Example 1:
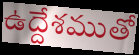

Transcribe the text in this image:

ఉద్దేశముతో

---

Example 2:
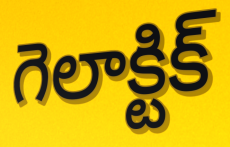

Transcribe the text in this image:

గెలాక్టిక్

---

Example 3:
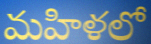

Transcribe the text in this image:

మహిళలో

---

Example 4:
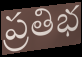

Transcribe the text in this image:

ప్రతిభ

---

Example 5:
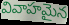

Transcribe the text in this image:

వివాహమైన